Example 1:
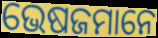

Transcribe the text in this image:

ଭେଷଜମାନେ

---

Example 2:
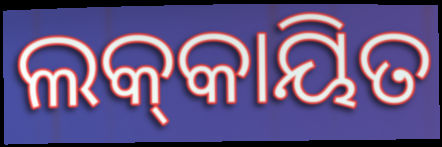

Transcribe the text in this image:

ଲକ୍‌କାୟିତ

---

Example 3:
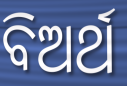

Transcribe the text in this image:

ବିଅର୍ଥ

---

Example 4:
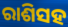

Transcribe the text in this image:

ରାଶିସହ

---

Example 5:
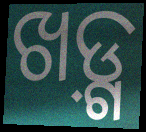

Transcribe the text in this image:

ଖଡ଼୍ଗ